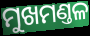
ମୁଖମଣ୍ତଳ